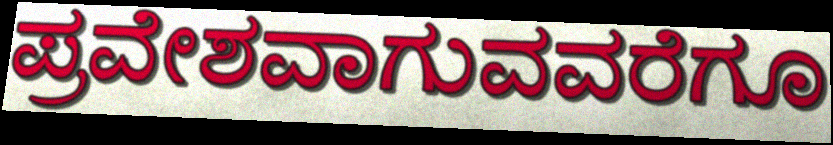
ಪ್ರವೇಶವಾಗುವವರೆಗೂ